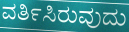
ವರ್ತಿಸಿರುವುದು